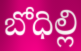
బోధిల్లి